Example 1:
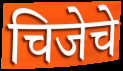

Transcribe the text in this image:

चिजेचे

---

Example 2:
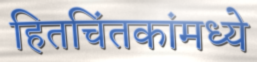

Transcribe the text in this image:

हितचिंतकांमध्ये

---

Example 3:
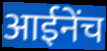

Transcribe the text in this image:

आईनेंच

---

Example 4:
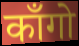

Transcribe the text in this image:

काँगो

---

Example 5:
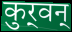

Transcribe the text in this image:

कुर्वन्